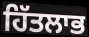
ਹਿੱਤਲਾਭ